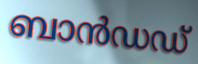
ബാൻഡഡ്